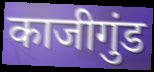
काजीगुंड